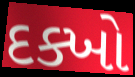
દક્ખો